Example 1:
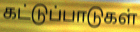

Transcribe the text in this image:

கட்டுப்பாடுகள்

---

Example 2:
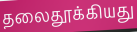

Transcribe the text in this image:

தலைதூக்கியது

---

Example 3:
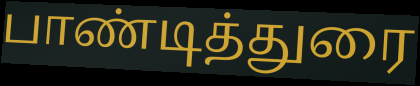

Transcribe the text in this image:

பாண்டித்துரை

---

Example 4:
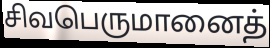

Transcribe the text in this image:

சிவபெருமானைத்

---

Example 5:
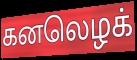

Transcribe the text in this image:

கனலெழக்